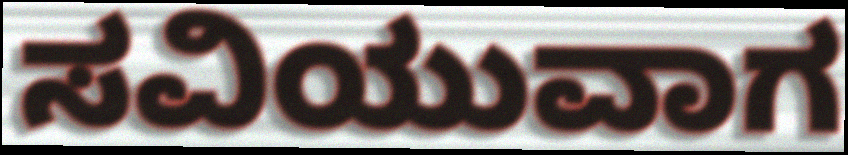
ಸವಿಯುವಾಗ